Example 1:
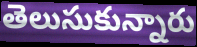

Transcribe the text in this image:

తెలుసుకున్నారు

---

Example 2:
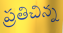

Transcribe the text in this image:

ప్రతిచిన్న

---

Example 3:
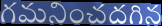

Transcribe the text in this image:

గమనించదగిన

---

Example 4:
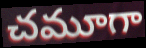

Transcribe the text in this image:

చమూగా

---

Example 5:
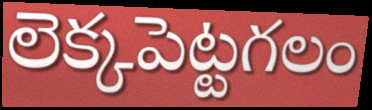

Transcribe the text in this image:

లెక్కపెట్టగలం